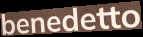
benedetto